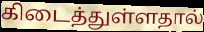
கிடைத்துள்ளதால்